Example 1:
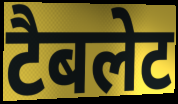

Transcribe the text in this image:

टैबलेट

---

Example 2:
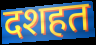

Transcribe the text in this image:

दशहत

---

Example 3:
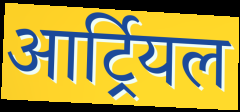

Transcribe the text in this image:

आर्ट्रियल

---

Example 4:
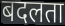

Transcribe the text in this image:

बदलता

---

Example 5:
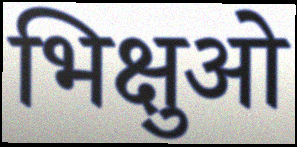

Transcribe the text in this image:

भिक्षुओ